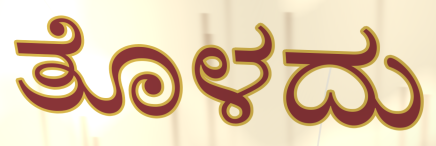
ತೊಳದು